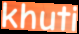
khuti